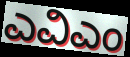
ಎವಿಎಂ